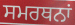
ਸਮਰਥਨਾਂ